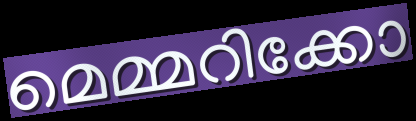
മെമ്മറിക്കോ